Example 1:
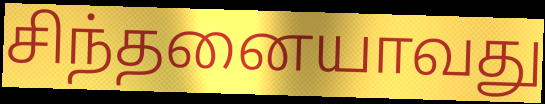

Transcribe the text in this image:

சிந்தனையாவது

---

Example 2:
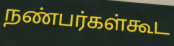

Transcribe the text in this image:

நண்பர்கள்கூட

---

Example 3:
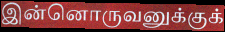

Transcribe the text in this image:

இன்னொருவனுக்குக்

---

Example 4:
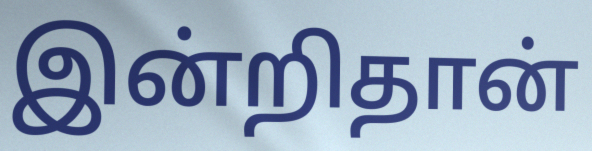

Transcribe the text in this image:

இன்றிதான்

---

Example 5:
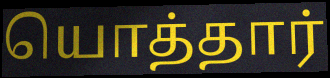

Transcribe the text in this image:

யொத்தார்